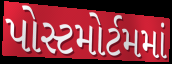
પોસ્ટમોર્ટમમાં